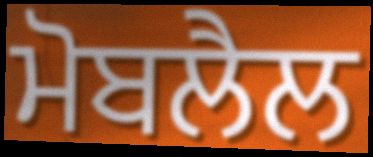
ਮੋਬਲੈਲ